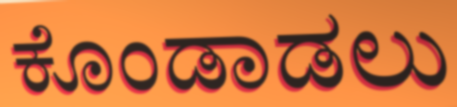
ಕೊಂಡಾಡಲು